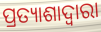
ପ୍ରତ୍ୟାଶାଦ୍ୱାରା